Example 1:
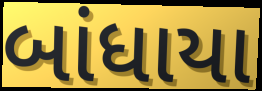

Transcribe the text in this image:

બાંધાયા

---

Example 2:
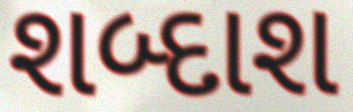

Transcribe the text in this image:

શબ્દાશ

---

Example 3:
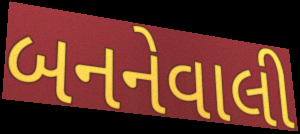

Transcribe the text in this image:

બનનેવાલી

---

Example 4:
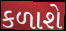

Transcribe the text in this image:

કળાશે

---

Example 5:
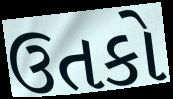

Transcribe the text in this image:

ઉતકો